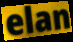
elan